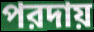
পরদায়